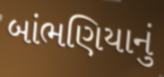
બાંભણિયાનું